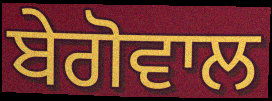
ਬੇਗੋਵਾਲ